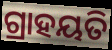
ଗ୍ରାହୟତି